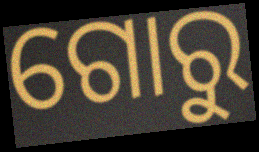
ଗୋରୁ